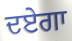
ਦਏਗਾ